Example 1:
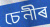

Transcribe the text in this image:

চেনীৰ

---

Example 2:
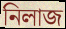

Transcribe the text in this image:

নিলাজ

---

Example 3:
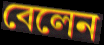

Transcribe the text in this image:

বেলেন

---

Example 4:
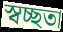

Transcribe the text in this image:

স্বচ্ছতা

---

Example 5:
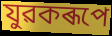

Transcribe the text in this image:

যুৱকৰূপে